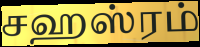
சஹஸ்ரம்